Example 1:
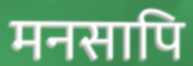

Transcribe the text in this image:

मनसापि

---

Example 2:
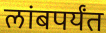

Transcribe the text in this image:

लांबपर्यंत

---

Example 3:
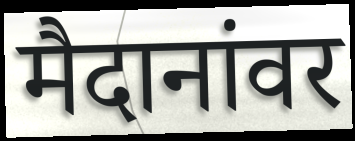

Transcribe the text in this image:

मैदानांवर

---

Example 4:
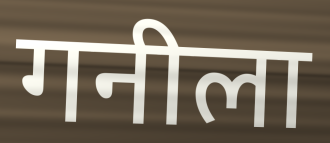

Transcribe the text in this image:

गनीला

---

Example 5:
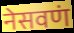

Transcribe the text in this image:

नेसवणं